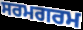
ਸਰਮਗਰਮ